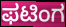
ಫಟಿಂಗ